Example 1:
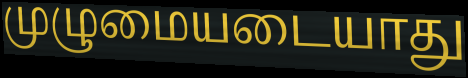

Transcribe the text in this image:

முழுமையடையாது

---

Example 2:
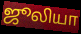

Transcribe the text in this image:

ஜூலியா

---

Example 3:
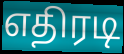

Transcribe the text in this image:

எதிரடி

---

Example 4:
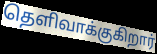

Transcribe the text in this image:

தெளிவாக்குகிறார்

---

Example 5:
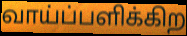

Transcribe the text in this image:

வாய்ப்பளிக்கிற